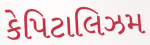
કેપિટાલિઝમ